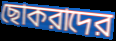
ছোকরাদের